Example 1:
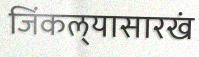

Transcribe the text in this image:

जिंकल्यासारखं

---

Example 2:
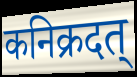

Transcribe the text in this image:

कनिक्रदत्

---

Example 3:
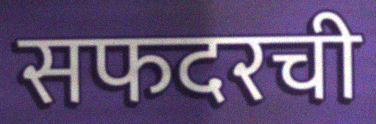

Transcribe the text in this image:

सफदरची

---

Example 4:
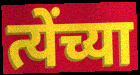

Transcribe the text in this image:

त्येंच्या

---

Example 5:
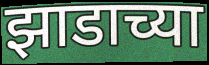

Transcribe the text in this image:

झाडाच्या